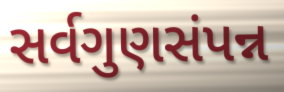
સર્વગુણસંપન્ન